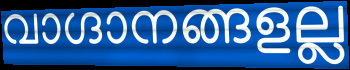
വാഗ്ദാനങ്ങളല്ല